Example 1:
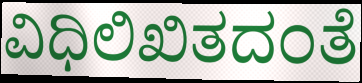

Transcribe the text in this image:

ವಿಧಿಲಿಖಿತದಂತೆ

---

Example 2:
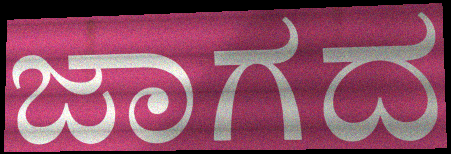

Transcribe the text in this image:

ಜಾಗದ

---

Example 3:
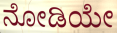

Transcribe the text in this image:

ನೋಡಿಯೇ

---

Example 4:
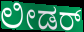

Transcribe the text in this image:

ಲೀಡರ್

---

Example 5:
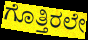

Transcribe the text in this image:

ಗೊತ್ತಿರಲೇ